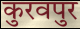
कुरवपुर